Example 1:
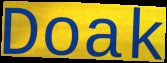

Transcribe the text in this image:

Doak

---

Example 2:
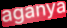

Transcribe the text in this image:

aganya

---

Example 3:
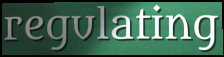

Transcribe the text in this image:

regulating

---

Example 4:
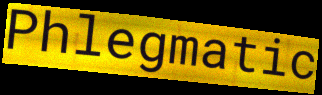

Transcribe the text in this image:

Phlegmatic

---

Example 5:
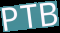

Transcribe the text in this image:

PTB